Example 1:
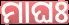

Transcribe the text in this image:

ମାଘଃ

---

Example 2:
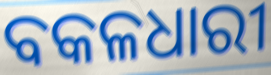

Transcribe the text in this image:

ବକଳଧାରୀ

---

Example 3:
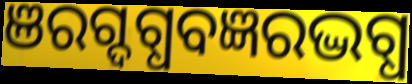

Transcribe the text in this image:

ଞରଗ୍ଦଗ୍ଧବଜ୍ଞରଦ୍ଭଗ୍ଧ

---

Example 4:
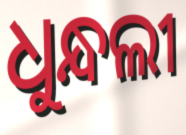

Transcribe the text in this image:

ଧୁନ୍ଧଲୀ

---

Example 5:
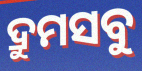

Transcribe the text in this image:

ଦ୍ରୁମସବୁ